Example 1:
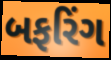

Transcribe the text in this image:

બફરિંગ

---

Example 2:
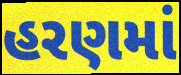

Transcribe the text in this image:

હરણમાં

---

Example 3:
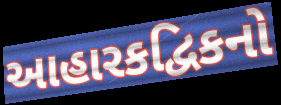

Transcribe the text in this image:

આહારકદ્વિકનો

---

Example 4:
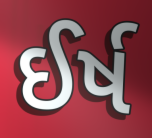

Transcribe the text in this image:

ઈર્ષ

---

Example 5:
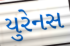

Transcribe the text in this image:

યુરેનસ